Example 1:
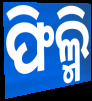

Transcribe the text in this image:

ଫିଲ୍ମି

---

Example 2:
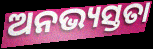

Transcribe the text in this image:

ଅନଭ୍ୟସ୍ତତା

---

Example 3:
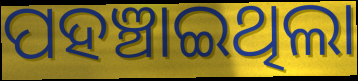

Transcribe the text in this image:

ପହଞ୍ଚାଇଥିଲା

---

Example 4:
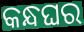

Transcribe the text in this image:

କନ୍ଧଘର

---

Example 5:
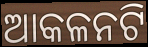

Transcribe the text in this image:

ଆକଳନଟି